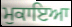
ਮੁਕਾਇਆ